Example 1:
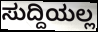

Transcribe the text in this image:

ಸುದ್ದಿಯಲ್ಲ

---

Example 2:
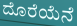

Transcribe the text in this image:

ದೊರೆಯೆನೆ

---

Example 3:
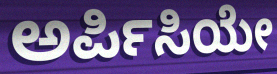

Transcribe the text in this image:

ಅರ್ಪಿಸಿಯೇ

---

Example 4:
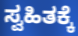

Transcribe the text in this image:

ಸ್ವಹಿತಕ್ಕೆ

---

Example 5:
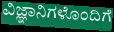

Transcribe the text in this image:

ವಿಜ್ಞಾನಿಗಳೊಂದಿಗೆ